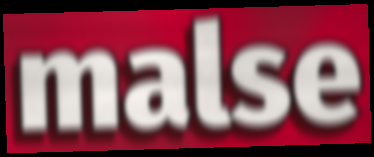
malse